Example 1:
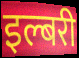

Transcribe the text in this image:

इल्बरी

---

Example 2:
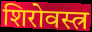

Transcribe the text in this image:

शिरोवस्त्र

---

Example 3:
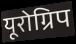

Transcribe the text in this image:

यूरोग्रिप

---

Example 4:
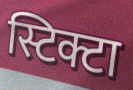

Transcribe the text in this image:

स्टिक्टा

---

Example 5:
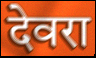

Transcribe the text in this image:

देवरा